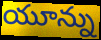
యూన్ను